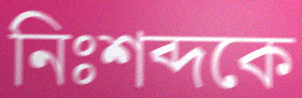
নিঃশব্দকে